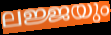
ലജ്ജയും